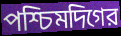
পশ্চিমদিগের